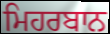
ਮਿਹਰਬਾਨ